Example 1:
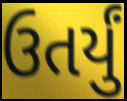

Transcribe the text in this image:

ઉતર્યું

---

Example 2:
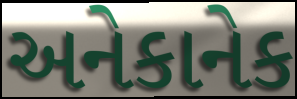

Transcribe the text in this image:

અનેકાનેક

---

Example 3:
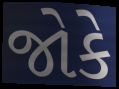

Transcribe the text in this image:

જોકે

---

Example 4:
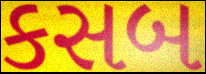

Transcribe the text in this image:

કસબ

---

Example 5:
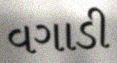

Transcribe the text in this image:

વગાડી